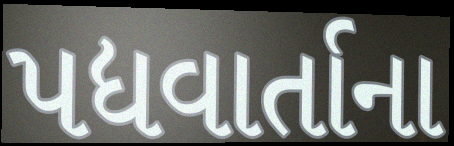
પદ્યવાર્તાના